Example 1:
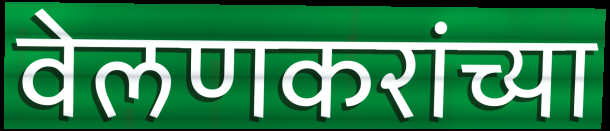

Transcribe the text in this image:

वेलणकरांच्या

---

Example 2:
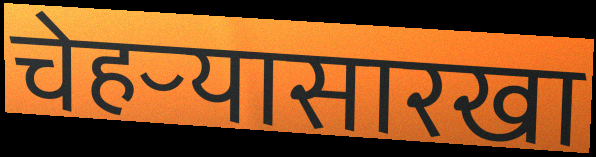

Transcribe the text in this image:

चेहऱ्यासारखा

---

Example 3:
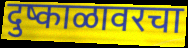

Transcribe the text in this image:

दुष्काळावरचा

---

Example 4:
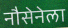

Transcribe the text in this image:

नौसेनेला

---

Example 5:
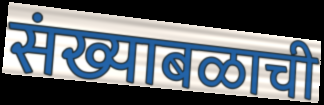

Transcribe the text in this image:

संख्याबळाची